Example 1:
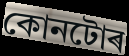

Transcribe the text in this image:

কোনটোৰ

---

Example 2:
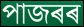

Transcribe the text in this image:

পাজৰৰ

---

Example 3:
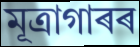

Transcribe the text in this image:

মূত্ৰাগাৰৰ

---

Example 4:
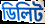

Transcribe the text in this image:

ডিলিট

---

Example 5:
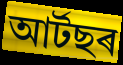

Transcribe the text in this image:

আৰ্টছৰ